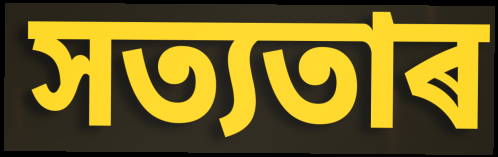
সত্যতাৰ